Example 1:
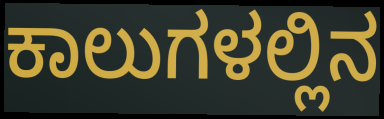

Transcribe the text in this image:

ಕಾಲುಗಳಲ್ಲಿನ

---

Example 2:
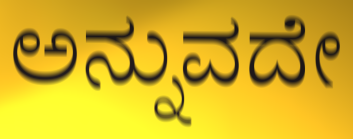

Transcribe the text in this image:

ಅನ್ನುವದೇ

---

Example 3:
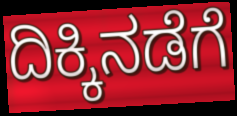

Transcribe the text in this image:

ದಿಕ್ಕಿನಡೆಗೆ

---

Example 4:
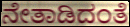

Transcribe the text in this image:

ನೇತಾಡಿದಂತೆ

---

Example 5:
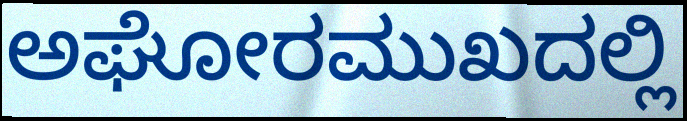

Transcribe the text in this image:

ಅಘೋರಮುಖದಲ್ಲಿ